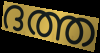
ദത്ത